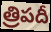
త్రిపదీ